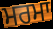
ਮਰਮਾ